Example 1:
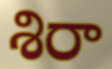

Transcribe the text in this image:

శిరా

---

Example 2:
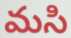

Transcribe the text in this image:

మసి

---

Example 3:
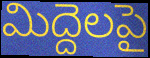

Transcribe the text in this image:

మిద్దెలపై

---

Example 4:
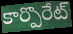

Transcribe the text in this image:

కార్పొరేట్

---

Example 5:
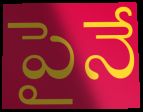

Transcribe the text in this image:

పైనే